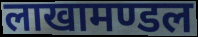
लाखामण्डल